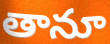
తానూ